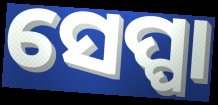
ସେପ୍ପା